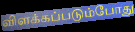
விளக்கப்படும்போது